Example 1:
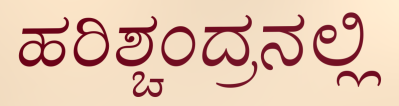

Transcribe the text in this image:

ಹರಿಶ್ಚಂದ್ರನಲ್ಲಿ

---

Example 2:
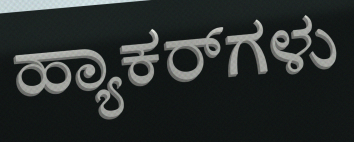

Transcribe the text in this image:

ಹ್ಯಾಕರ್‌ಗಳು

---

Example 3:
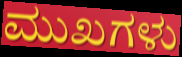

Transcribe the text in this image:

ಮುಖಗಳು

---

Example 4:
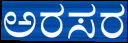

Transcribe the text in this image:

ಅರಸರ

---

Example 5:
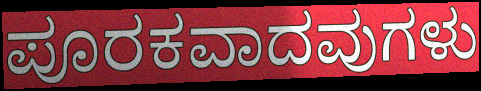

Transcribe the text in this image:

ಪೂರಕವಾದವುಗಳು